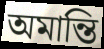
অমান্তি